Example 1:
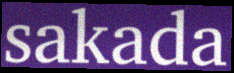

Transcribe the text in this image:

sakada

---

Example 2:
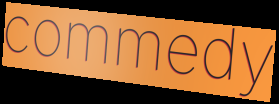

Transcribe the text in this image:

commedy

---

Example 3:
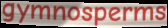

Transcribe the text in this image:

gymnosperms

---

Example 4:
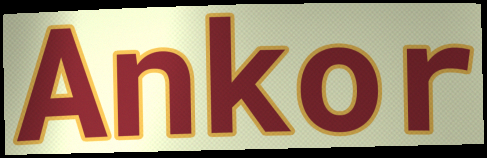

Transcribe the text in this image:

Ankor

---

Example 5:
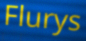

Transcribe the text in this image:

Flurys